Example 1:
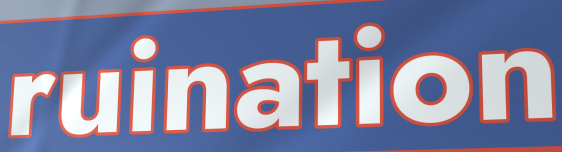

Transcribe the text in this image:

ruination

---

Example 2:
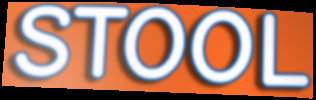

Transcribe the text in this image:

STOOL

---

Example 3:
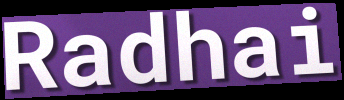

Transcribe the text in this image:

Radhai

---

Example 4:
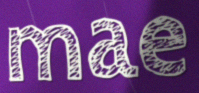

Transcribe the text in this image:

mae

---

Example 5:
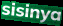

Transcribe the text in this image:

sisinya